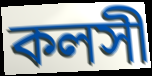
কলসী